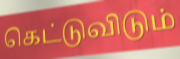
கெட்டுவிடும்